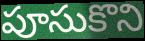
పూసుకొని